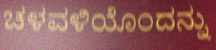
ಚಳವಳಿಯೊಂದನ್ನು